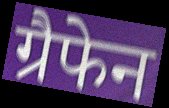
ग्रैफेन